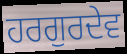
ਹਰਗੁਰਦੇਵ